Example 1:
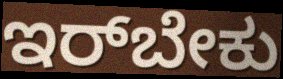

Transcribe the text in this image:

ಇರ್‌ಬೇಕು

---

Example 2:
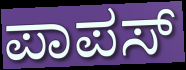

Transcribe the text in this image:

ಪಾಪಸ್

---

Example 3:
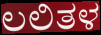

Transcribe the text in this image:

ಲಲಿತಳ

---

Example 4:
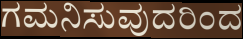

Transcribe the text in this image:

ಗಮನಿಸುವುದರಿಂದ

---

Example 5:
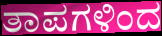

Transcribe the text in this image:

ತಾಪಗಳಿಂದ